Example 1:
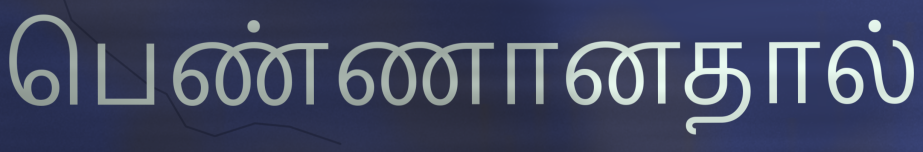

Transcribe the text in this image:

பெண்ணானதால்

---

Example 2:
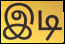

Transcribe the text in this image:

இடி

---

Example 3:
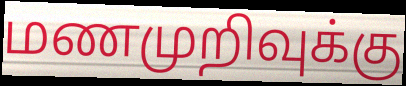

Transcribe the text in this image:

மணமுறிவுக்கு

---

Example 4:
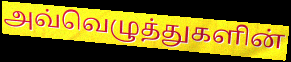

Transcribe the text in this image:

அவ்வெழுத்துகளின்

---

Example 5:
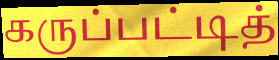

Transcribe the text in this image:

கருப்பட்டித்